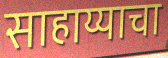
साहाय्याचा